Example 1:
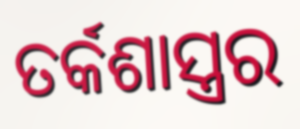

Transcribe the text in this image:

ତର୍କଶାସ୍ତ୍ରର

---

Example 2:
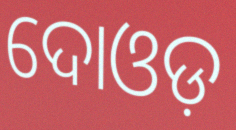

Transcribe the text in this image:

ଦୋଓଡ଼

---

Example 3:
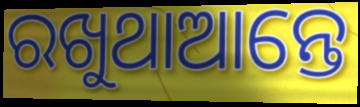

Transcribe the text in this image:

ରଖୁଥାଆନ୍ତେ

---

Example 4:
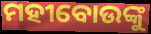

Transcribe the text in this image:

ମହୀବୋଉଙ୍କୁ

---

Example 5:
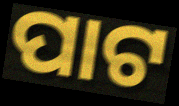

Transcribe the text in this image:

ପାଟ